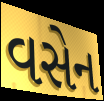
વસેન